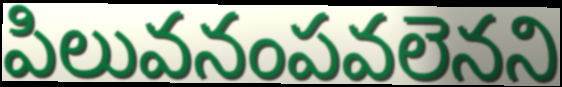
పిలువనంపవలెనని